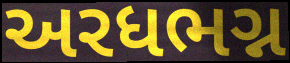
અરધભગ્ન